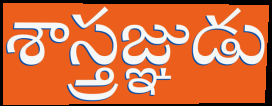
శాస్త్రజ్ఞుడు